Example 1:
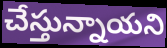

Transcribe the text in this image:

చేస్తున్నాయని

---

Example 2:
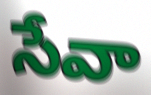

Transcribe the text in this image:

సేవా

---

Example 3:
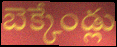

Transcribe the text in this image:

బెక్కేండ్లు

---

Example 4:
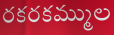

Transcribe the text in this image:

రకరకమ్ముల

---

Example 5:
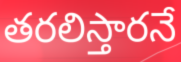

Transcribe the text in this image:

తరలిస్తారనే